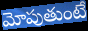
మోపుతుంటే